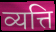
व्यत्ति